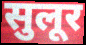
सुलूर